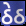
ઠેઠ